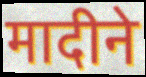
मादीने